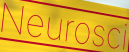
Neurosci